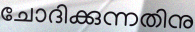
ചോദിക്കുന്നതിനു